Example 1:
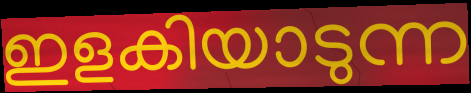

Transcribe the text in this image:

ഇളകിയാടുന്ന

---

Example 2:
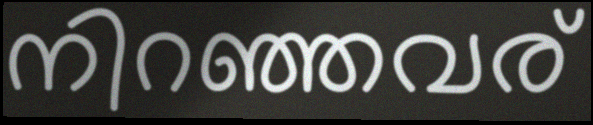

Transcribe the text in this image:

നിറഞ്ഞവര്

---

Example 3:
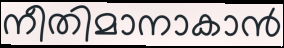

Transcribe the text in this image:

നീതിമാനാകാൻ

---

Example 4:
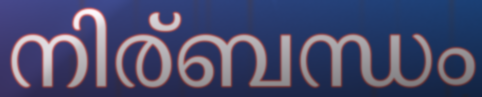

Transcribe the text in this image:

നിര്ബന്ധം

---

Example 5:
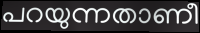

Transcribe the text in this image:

പറയുന്നതാണീ